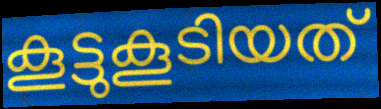
കൂട്ടുകൂടിയത്